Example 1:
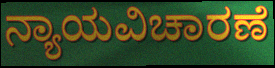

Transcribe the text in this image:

ನ್ಯಾಯವಿಚಾರಣೆ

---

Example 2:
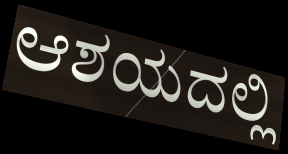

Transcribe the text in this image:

ಆಶಯದಲ್ಲಿ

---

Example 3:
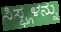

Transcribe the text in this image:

ಸಿಸ್ಟ್ಗಳನ್ನು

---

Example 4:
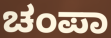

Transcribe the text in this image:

ಚಂಪಾ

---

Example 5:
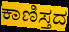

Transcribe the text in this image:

ಕಾಣಿಸ್ತದ